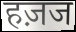
हज़ज